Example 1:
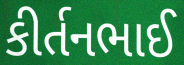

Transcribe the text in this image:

કીર્તનભાઈ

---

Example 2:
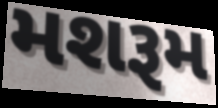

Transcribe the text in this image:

મશરૂમ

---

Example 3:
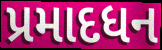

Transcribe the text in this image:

પ્રમાદધન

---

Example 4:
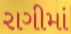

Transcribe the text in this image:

રાગીમાં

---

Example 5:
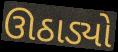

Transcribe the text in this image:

ઊઠાડ્યો